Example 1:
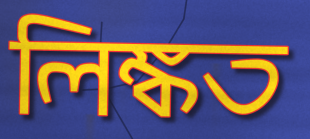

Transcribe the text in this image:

লিঙ্কত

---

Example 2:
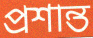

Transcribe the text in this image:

প্ৰশান্ত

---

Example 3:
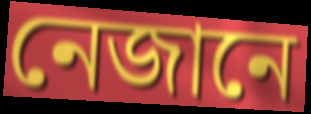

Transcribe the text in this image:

নেজানে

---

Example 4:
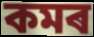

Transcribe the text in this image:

কমৰ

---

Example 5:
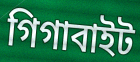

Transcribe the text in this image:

গিগাবাইট